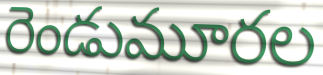
రెండుమూరల